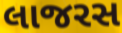
લાજરસ